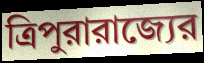
ত্রিপুরারাজ্যের